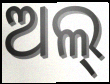
ଅଲ୍